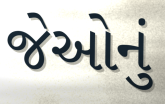
જેઓનું